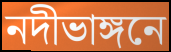
নদীভাঙ্গনে